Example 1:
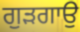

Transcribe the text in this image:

ਗੁੜਗਾਉ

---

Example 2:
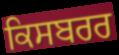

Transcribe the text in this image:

ਕਿਸਬਰਰ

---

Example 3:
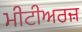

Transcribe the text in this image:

ਮੀਟੀਅਰਜ਼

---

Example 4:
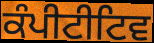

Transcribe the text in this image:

ਕੰਪੀਟੀਟਿਵ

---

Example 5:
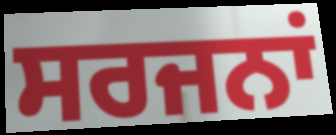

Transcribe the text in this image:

ਸਰਜਨਾਂ